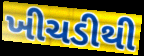
ખીચડીથી